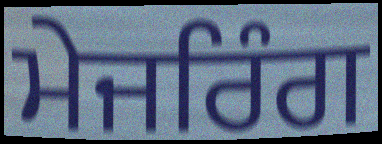
ਮੇਜਰਿੰਗ